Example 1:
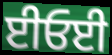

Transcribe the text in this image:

ਈਓਈ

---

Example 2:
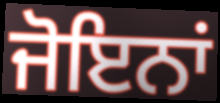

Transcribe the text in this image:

ਜੋਇਨਾਂ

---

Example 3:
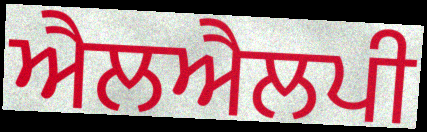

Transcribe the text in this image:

ਐਲਐਲਪੀ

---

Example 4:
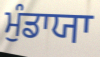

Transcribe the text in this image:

ਮੁੰਡਾਯਾ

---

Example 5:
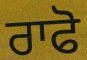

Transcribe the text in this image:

ਰਾਫੋ